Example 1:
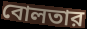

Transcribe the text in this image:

বোলতার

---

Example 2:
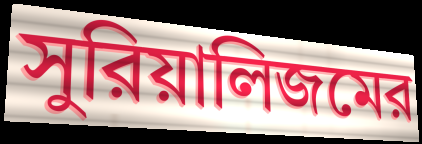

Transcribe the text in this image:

সুরিয়ালিজমের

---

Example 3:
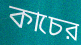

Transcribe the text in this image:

কাচের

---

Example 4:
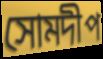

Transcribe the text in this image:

সোমদীপ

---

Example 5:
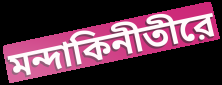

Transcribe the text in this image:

মন্দাকিনীতীরে